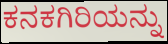
ಕನಕಗಿರಿಯನ್ನು